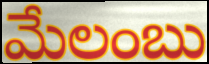
మేలంబు